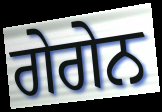
ਗੇਗੇਨ